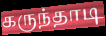
கருந்தாடி